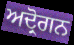
ਅਦ੍ਰੋਗਨ